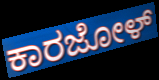
ಕಾರಜೋಳ್